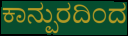
ಕಾನ್ಪುರದಿಂದ